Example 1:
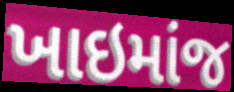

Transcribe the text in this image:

ખાઇમાંજ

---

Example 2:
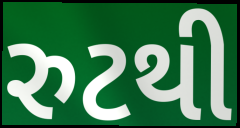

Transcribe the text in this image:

રુટથી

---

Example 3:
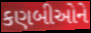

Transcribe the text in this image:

કણબીઓને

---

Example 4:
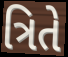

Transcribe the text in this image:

ત્રિતે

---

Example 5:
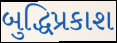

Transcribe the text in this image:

બુદ્ધિપ્રકાશ